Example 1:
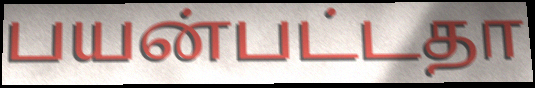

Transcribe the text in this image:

பயன்பட்டதா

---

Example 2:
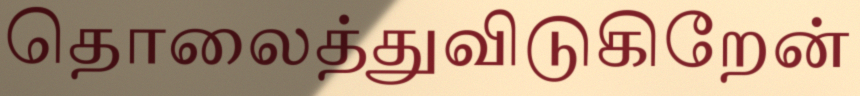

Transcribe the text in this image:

தொலைத்துவிடுகிறேன்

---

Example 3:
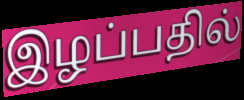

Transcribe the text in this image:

இழப்பதில்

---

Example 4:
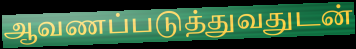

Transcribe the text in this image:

ஆவணப்படுத்துவதுடன்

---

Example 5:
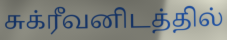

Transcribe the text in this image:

சுக்ரீவனிடத்தில்